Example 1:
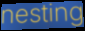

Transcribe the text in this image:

nesting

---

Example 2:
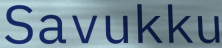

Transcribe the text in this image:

Savukku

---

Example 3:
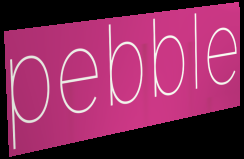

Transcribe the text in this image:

pebble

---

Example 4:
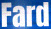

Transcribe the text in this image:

Fard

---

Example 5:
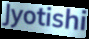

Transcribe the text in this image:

Jyotishi